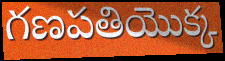
గణపతియొక్క